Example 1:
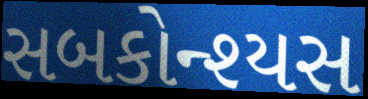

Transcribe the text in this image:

સબકોન્શ્યસ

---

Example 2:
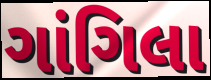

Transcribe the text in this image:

ગાંગિલા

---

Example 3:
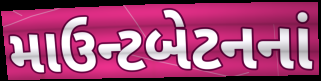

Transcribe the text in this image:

માઉન્ટબેટનનાં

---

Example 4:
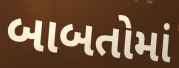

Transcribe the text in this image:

બાબતોમાં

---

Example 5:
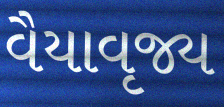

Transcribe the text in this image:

વૈયાવૃજ્ય